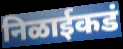
निळाईकडं